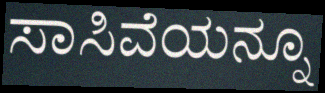
ಸಾಸಿವೆಯನ್ನೂ